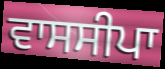
ਵਾਸਸੀਪਾ